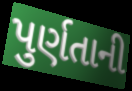
પુર્ણતાની